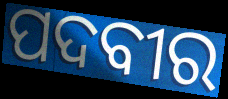
ପଦବୀର